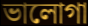
ভালোগা